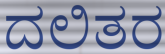
ದಲಿತರ